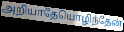
அறியாதேயொழிந்தேன்